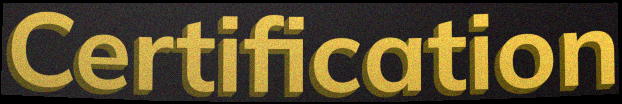
Certification